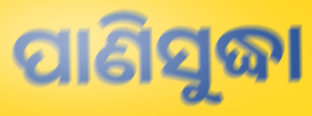
ପାଣିସୁଦ୍ଧା